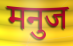
मनुज